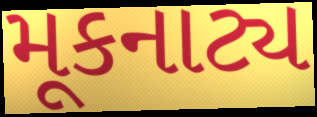
મૂકનાટ્ય